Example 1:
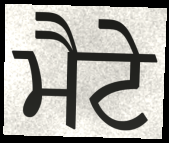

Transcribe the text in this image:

ਮੈਟੇ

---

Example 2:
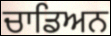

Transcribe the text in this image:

ਚਾਡਿਅਨ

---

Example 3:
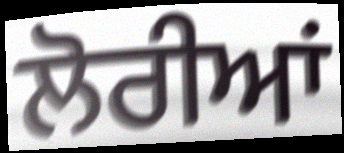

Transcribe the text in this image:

ਲੋਰੀਆਂ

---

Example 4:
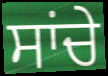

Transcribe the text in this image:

ਸਾਂਚੇ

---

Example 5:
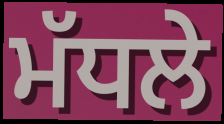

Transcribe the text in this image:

ਮੱਧਲੇ